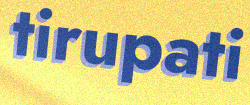
tirupati